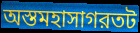
অস্তমহাসাগরতট